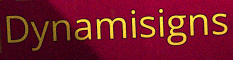
Dynamisigns